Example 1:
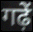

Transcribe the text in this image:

गढ़ें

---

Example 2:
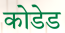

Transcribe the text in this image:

कोडेड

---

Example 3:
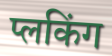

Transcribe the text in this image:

प्लकिंग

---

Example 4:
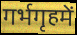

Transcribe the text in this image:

गर्भगृहमें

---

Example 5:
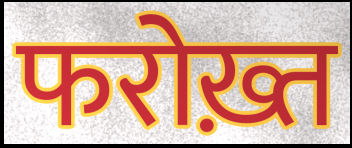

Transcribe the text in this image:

फरोख़्त